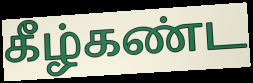
கீழ்கண்ட